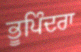
ਭੂਪਿੰਦਰਾ